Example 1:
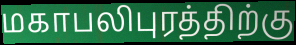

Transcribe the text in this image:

மகாபலிபுரத்திற்கு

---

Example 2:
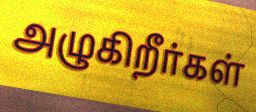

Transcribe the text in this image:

அழுகிறீர்கள்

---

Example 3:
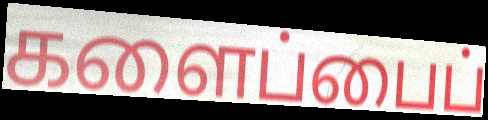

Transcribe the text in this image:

களைப்பைப்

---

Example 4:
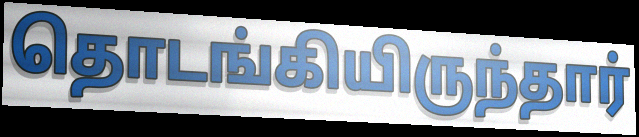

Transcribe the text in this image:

தொடங்கியிருந்தார்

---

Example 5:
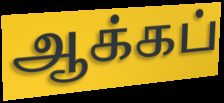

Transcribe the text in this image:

ஆக்கப்